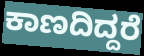
ಕಾಣದಿದ್ದರೆ